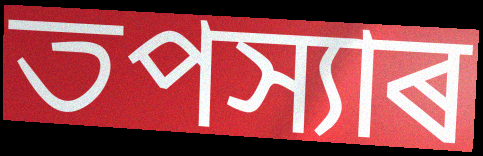
তপস্যাৰ